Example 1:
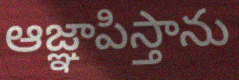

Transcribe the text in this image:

ఆజ్ఞాపిస్తాను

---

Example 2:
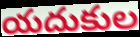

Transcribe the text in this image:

యదుకుల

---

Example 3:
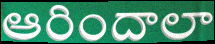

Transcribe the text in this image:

ఆరిందాలా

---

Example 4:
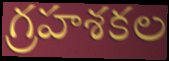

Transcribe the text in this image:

గ్రహశకల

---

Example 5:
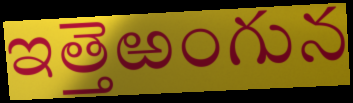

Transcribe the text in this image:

ఇత్తెఱంగున